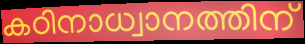
കഠിനാധ്വാനത്തിന്